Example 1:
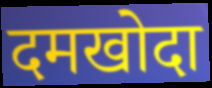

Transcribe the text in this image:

दमखोदा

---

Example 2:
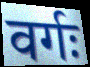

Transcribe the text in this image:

वर्गः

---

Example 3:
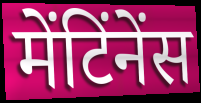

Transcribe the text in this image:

मेंटिंनेंस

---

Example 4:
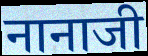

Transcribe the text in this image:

नानाजी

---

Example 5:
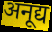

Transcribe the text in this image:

अनूद्य